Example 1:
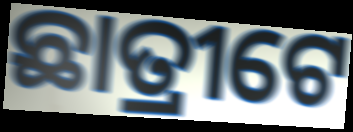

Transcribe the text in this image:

ଛାତ୍ରୀଟେ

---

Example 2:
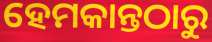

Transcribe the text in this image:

ହେମକାନ୍ତଠାରୁ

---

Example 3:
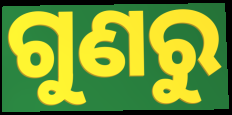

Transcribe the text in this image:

ଗୁଣରୁ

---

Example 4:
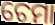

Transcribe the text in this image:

ଚେମା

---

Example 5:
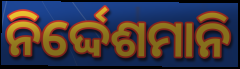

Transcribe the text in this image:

ନିର୍ଦ୍ଦେଶମାନି